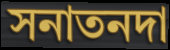
সনাতনদা